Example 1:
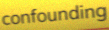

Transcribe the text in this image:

confounding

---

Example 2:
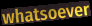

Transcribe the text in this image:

whatsoever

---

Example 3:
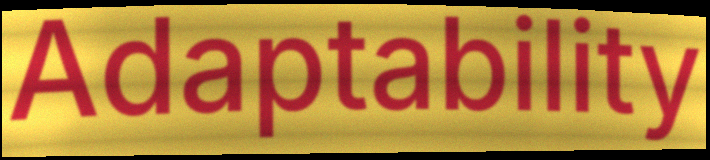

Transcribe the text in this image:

Adaptability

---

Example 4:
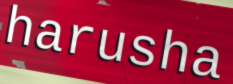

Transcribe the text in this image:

harusha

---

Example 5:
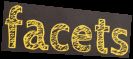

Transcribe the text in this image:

facets